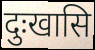
दुःखासि